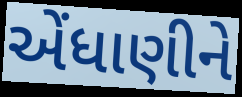
એંધાણીને